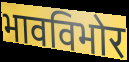
भावविभोर